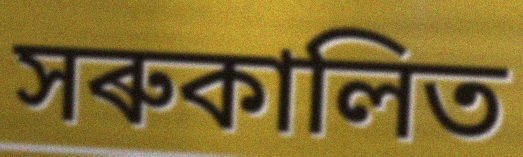
সৰুকালিত